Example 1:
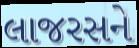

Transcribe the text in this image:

લાજરસને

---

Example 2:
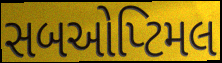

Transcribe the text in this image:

સબઓપ્ટિમલ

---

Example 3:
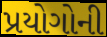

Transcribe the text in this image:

પ્રયોગોની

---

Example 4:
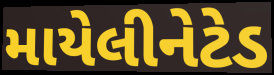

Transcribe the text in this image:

માયેલીનેટેડ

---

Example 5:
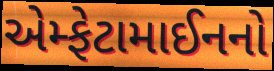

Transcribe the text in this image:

એમ્ફેટામાઈનનો